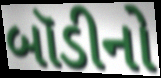
બૉડીનો